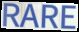
RARE